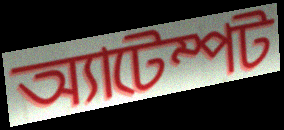
অ্যাটেম্পট